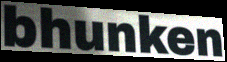
bhunken